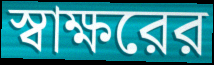
স্বাক্ষরের